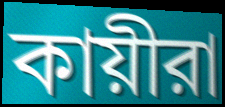
কায়ীরা